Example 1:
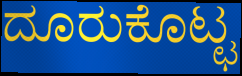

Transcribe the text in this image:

ದೂರುಕೊಟ್ಟ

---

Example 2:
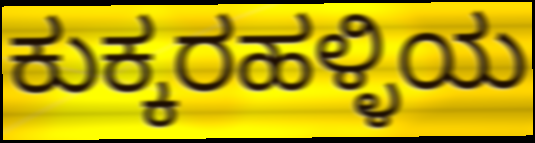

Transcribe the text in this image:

ಕುಕ್ಕರಹಳ್ಳಿಯ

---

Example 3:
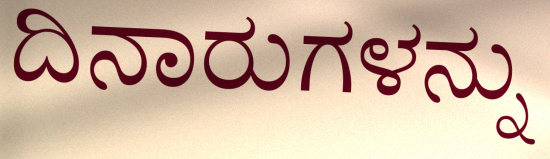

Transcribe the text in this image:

ದಿನಾರುಗಳನ್ನು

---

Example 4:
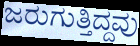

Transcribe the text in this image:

ಜರುಗುತ್ತಿದ್ದವು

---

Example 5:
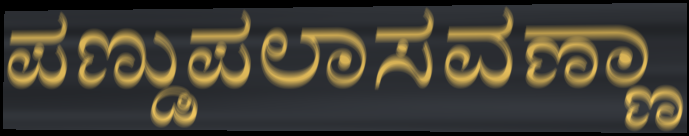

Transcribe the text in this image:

ಪಣ್ಡುಪಲಾಸವಣ್ಣಾ